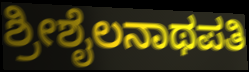
ಶ್ರೀಶೈಲನಾಥಪತಿ